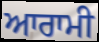
ਆਰਾਮੀ